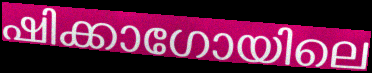
ഷിക്കാഗോയിലെ